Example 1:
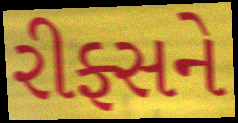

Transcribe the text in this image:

રીફ્સને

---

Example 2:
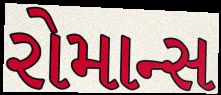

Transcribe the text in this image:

રોમાન્સ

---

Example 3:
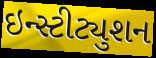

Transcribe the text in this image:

ઇન્સ્ટીટ્યુશન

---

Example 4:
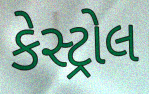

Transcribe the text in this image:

કેસ્ટ્રોલ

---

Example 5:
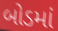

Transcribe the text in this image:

બોડમાં